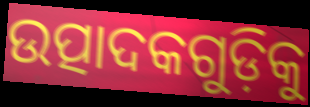
ଉତ୍ପାଦକଗୁଡ଼ିକୁ